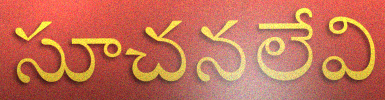
సూచనలేవి